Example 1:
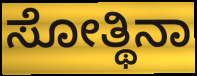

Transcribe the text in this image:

ಸೋತ್ಥಿನಾ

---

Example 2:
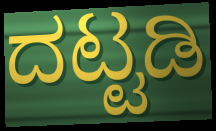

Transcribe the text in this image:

ದಟ್ಟಡಿ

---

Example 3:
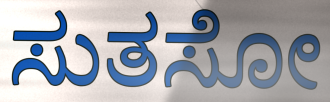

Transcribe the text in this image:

ಸುತಸೋ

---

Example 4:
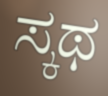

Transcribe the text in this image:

ಸ್ಕಥ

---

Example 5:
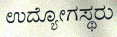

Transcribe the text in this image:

ಉದ್ಯೋಗಸ್ಥರು